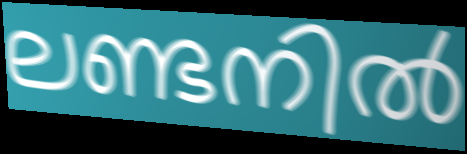
ലണ്ടനിൽ